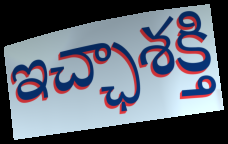
ఇచ్ఛాశక్తి